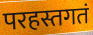
परहस्तगतं